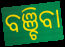
ବଞ୍ଚିବା